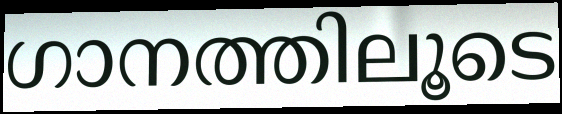
ഗാനത്തിലൂടെ